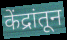
केंद्रांतून